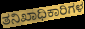
ತನಿಖಾಧಿಕಾರಿಗಳ